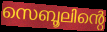
സെബൂലിന്റെ